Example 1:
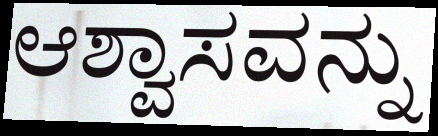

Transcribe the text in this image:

ಆಶ್ವಾಸವನ್ನು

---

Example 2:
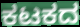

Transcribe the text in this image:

ಕಟಕದ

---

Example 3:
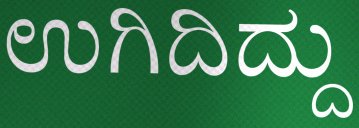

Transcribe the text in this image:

ಉಗಿದಿದ್ದು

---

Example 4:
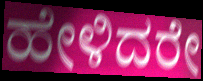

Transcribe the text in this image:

ಹೇಳಿದರೇ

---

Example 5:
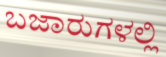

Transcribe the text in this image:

ಬಜಾರುಗಳಲ್ಲಿ